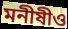
মনীষীও